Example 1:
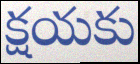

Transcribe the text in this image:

క్షయకు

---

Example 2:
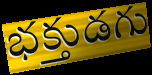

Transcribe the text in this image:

భక్తుడగు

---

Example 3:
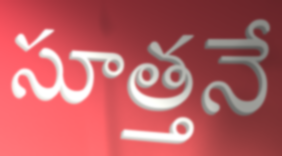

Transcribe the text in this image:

సూత్తనే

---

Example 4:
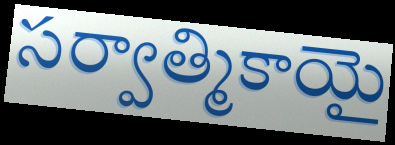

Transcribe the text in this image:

సర్వాత్మికాయై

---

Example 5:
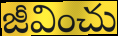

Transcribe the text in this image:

జీవించు